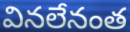
వినలేనంత